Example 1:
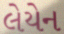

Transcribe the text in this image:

લેયેન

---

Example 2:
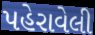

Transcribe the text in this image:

પહેરાવેલી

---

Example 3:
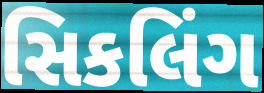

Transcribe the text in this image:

સિકલિંગ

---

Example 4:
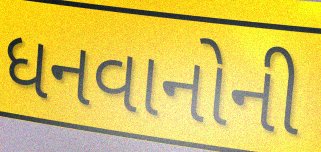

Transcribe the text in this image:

ધનવાનોની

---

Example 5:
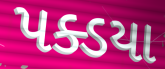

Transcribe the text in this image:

પક્ડયા